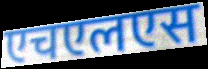
एचएलएस